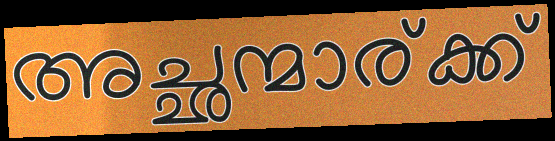
അച്ഛന്മാര്ക്ക്